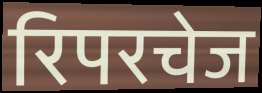
रिपरचेज